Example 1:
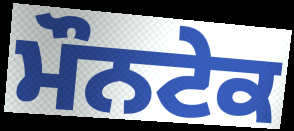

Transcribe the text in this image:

ਮੌਨਟੇਕ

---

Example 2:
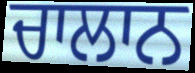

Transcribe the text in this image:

ਚਾਲਾਨ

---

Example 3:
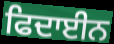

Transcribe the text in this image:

ਫਿਦਾਈਨ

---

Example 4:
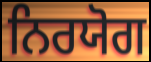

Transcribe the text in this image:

ਨਿਰਯੋਗ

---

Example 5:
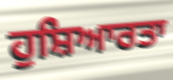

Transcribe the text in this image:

ਹੁਸ਼ਿਆਰਤਾ